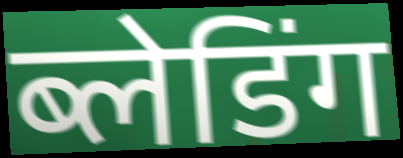
ब्लेडिंग